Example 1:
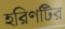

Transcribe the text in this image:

হরিণটির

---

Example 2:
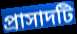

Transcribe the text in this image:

প্রাসাদটি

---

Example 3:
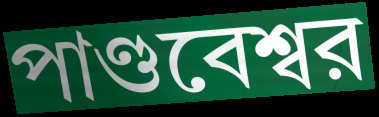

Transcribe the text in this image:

পাণ্ডবেশ্বর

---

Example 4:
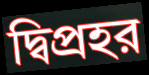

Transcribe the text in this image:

দ্বিপ্রহর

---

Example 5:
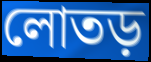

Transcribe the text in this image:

লোতড়